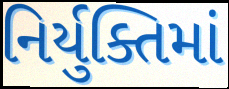
નિર્યુક્તિમાં